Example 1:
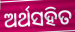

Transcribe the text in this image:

ଅର୍ଥସହିତ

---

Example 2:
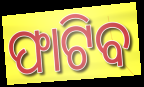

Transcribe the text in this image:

ଫାଟିବ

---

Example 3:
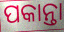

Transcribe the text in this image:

ପକାନ୍ତା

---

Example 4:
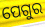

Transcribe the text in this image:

ପେଗୁର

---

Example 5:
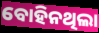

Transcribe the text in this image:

ବୋହିନଥିଲା